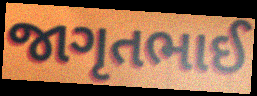
જાગૃતભાઈ